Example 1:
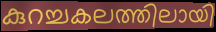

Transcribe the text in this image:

കുറച്ചകലത്തിലായി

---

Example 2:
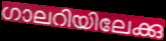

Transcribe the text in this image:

ഗാലറിയിലേക്കു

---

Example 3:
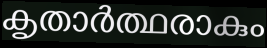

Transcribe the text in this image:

കൃതാർത്ഥരാകും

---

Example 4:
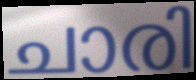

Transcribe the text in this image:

ചാരി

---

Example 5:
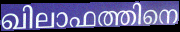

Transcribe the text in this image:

ഖിലാഫത്തിനെ